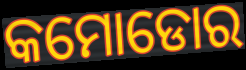
କମୋଡୋର